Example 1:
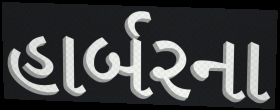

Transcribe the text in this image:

હાર્બરના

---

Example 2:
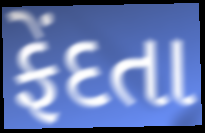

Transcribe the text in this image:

ફેંદતા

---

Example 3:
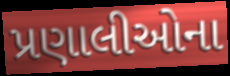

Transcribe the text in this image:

પ્રણાલીઓના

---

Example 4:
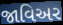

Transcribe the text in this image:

જાવિઅર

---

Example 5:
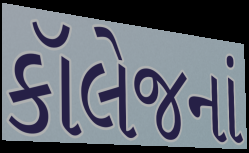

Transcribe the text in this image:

કૉલેજનાં